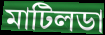
মাটিলডা